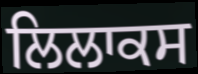
ਲਿਲਾਕਸ